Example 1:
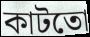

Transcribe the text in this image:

কাটতো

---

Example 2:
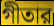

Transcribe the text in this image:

গীতার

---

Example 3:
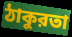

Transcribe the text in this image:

ঠাকুরতা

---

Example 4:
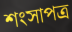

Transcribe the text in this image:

শংসাপত্র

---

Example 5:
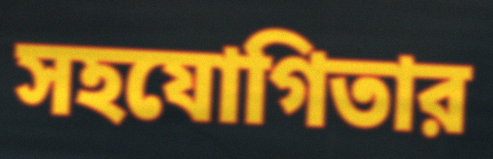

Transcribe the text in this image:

সহযোগিতার